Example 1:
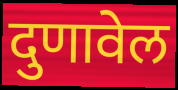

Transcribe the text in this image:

दुणावेल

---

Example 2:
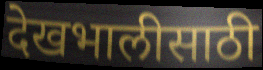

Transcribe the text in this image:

देखभालीसाठी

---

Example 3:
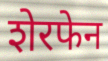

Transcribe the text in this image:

शेरफेन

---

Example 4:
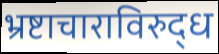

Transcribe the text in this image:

भ्रष्टाचाराविरुद्ध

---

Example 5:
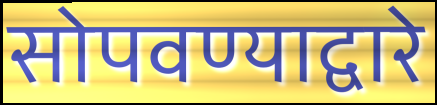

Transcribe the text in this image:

सोपवण्याद्वारे